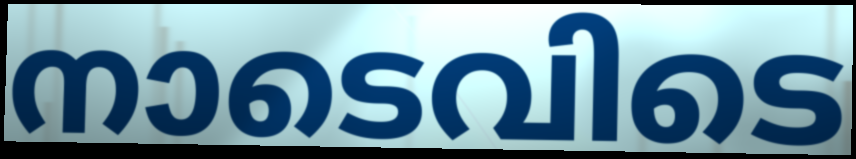
നാടെവിടെ